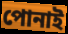
পোনাই